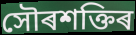
সৌৰশক্তিৰ